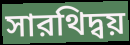
সারথিদ্বয়